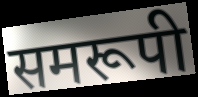
समरूपी